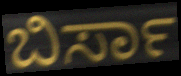
ಬಿರ್ಸಾ